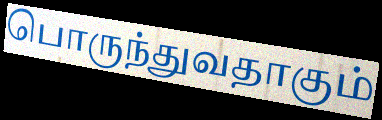
பொருந்துவதாகும்